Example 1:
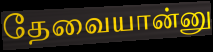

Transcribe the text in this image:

தேவையான்னு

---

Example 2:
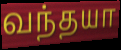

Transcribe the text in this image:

வந்தயா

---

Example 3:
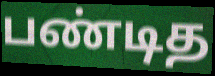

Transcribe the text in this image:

பண்டித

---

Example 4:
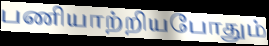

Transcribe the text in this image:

பணியாற்றியபோதும்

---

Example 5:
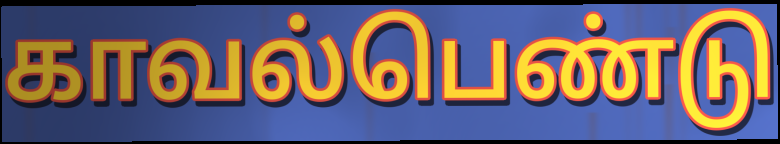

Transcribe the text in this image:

காவல்பெண்டு